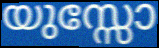
യുസ്സോ